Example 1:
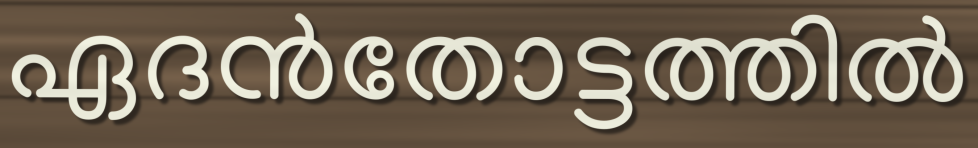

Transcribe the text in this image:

ഏദൻതോട്ടത്തിൽ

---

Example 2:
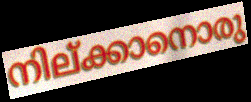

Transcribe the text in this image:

നില്ക്കാനൊരു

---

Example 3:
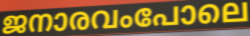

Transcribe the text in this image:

ജനാരവംപോലെ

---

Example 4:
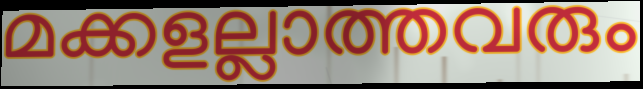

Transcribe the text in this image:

മക്കളല്ലാത്തവരും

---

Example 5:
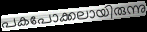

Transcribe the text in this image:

പകപോക്കലായിരുന്നു